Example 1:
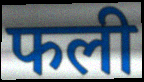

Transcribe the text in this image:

फली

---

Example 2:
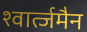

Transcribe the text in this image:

श्वार्त्जमैन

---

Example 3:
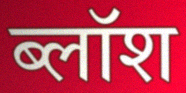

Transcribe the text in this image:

ब्लॉश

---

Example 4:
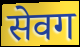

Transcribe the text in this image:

सेवग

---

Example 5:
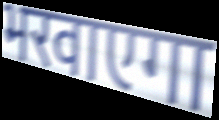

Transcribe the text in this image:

भरवाएगा